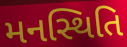
મનસ્થિતિ